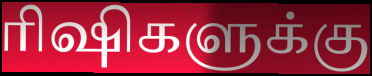
ரிஷிகளுக்கு